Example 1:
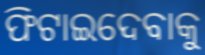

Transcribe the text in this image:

ଫିଟାଇଦେବାକୁ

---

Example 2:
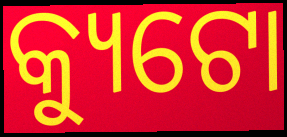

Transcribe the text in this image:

କ୍ୟୁଟୋ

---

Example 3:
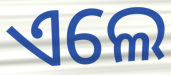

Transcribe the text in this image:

ଏଲେ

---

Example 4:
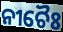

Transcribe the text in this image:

ନୀଚୈଃ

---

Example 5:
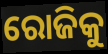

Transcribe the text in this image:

ରୋଜିକୁ